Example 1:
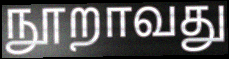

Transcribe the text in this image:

நூறாவது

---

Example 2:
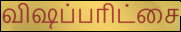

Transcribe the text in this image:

விஷப்பரிட்சை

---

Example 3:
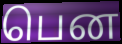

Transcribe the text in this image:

பென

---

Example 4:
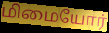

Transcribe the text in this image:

மிமையோர்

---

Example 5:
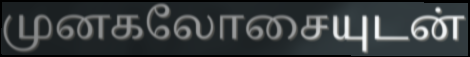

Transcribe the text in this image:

முனகலோசையுடன்